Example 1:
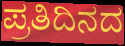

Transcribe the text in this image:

ಪ್ರತಿದಿನದ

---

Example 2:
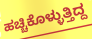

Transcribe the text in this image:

ಹಚ್ಚಿಕೊಳ್ಳುತ್ತಿದ್ದ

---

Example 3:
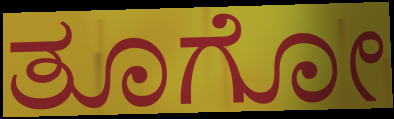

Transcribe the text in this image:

ತೂಗೋ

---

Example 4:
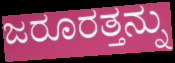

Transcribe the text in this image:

ಜರೂರತ್ತನ್ನು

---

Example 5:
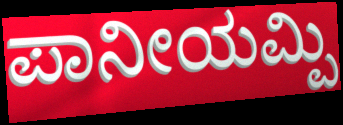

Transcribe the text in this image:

ಪಾನೀಯಮ್ಪಿ